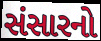
સંસારનો